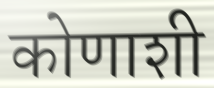
कोणाशी